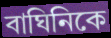
বাঘিনিকে